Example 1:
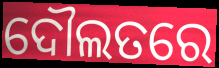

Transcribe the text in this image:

ଦୌଲତରେ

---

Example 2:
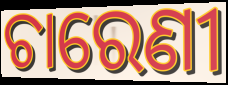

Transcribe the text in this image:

ଚାରେଣୀ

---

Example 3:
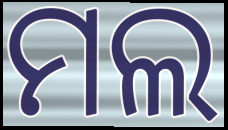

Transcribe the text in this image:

ମଲ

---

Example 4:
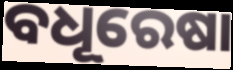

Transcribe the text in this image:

ବଧୂରେଷା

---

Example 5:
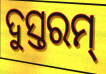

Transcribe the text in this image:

ଦୁସ୍ତରମ୍